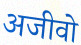
अजीवो